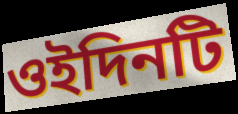
ওইদিনটি